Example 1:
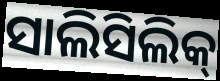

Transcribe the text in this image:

ସାଲିସିଲିକ୍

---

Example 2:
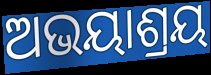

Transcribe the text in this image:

ଅଭୟାଶ୍ରୟ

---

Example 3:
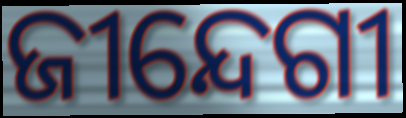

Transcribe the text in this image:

ଜୀନ୍ଦେଗୀ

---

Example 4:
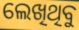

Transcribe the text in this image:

ଲେଖିଥିବୁ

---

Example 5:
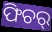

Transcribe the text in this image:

ଫିଚର୍